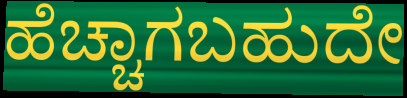
ಹೆಚ್ಚಾಗಬಹುದೇ